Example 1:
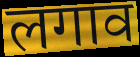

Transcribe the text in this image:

लगाव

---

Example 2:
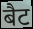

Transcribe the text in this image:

बैट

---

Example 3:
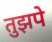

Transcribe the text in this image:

तुझपे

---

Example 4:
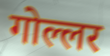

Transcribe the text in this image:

गोल्लर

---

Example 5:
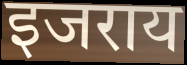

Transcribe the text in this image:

इजराय